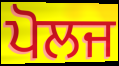
ਪੋਲਜ